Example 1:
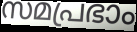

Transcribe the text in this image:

സമപ്രഭാം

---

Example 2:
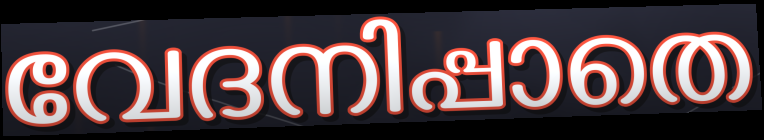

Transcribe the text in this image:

വേദനിപ്പാതെ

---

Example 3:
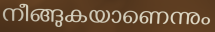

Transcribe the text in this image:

നീങ്ങുകയാണെന്നും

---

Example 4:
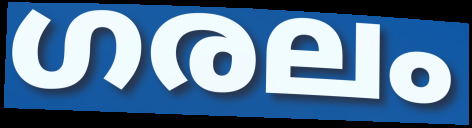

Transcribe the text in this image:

ഗരലം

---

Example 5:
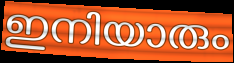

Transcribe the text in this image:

ഇനിയാരും